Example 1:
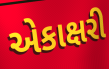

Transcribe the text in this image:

એકાક્ષરી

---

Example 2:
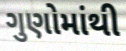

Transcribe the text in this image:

ગુણોમાંથી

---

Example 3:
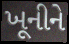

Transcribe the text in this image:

ખૂનીને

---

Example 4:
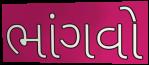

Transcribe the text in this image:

ભાંગવો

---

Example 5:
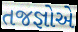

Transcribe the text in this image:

તજજ્ઞોએ